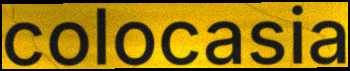
colocasia